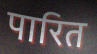
पारित